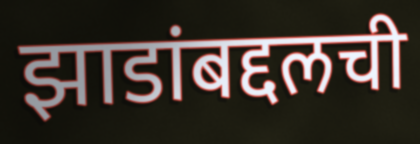
झाडांबद्दलची